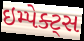
ઇમ્પેક્ટ્સ